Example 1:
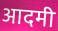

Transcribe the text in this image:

आदमी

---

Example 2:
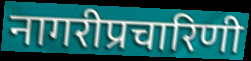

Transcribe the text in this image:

नागरीप्रचारिणी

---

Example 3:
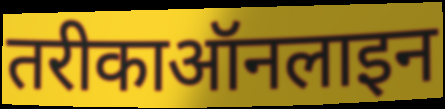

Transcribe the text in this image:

तरीकाऑनलाइन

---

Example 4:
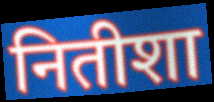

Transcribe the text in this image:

नितीशा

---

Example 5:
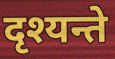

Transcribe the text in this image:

दृश्यन्ते